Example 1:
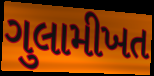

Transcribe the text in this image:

ગુલામીખત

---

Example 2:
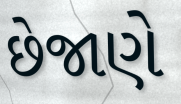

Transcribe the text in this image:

છેજાણે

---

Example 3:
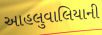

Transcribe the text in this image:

આહલુવાલિયાની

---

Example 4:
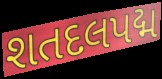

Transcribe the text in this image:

શતદલપદ્મ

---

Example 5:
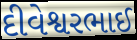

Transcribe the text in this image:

દીવેશ્વરભાઈ